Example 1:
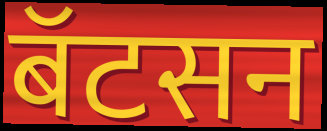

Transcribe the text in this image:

बॅटसन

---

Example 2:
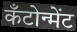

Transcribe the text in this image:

कँटोन्मेंट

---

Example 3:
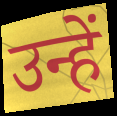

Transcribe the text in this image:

उन्हें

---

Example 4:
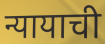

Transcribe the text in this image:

न्यायाची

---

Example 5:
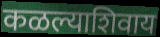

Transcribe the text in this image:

कळल्याशिवाय